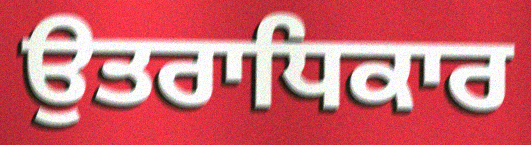
ਉਤਰਾਧਿਕਾਰ